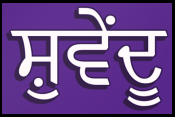
ਸ਼ੁਵੇਂਦੂ